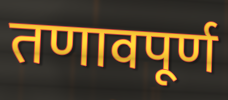
तणावपूर्ण